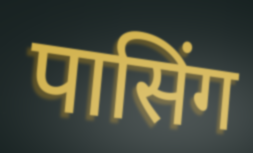
पासिंग